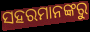
ସହରମାନଙ୍କରୁ